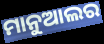
ମାନୁଆଲର